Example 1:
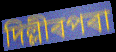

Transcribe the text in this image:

দিল্লীৰপৰা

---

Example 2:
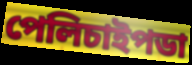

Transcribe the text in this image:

পেলিচাইপডা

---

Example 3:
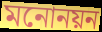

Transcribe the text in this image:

মনোনয়ন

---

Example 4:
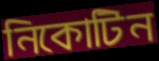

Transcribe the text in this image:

নিকোটিন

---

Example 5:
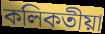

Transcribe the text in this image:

কলিকতীয়া